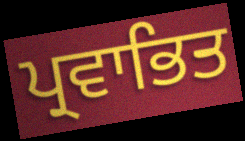
ਪ੍ਰਵਾਭਿਤ